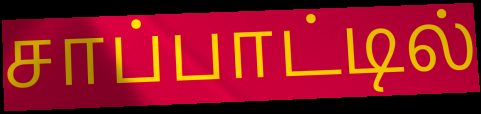
சாப்பாட்டில்